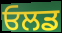
ਓਲਡ